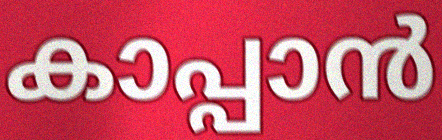
കാപ്പാൻ